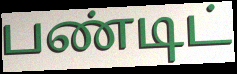
பண்டிட்